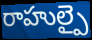
రాహుల్పై